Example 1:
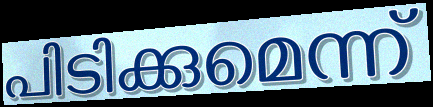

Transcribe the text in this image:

പിടിക്കുമെന്ന്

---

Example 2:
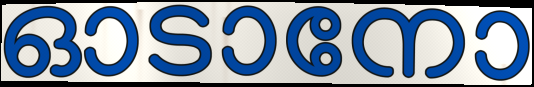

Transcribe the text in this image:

ഓടാനോ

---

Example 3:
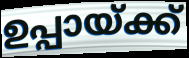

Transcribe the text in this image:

ഉപ്പായ്ക്ക്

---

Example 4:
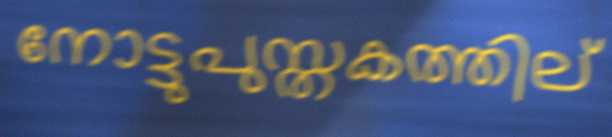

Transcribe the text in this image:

നോട്ടുപുസ്തകത്തില്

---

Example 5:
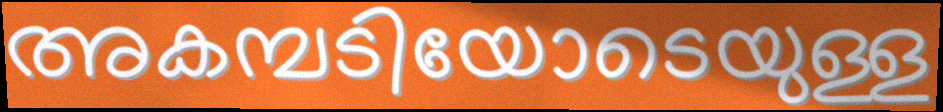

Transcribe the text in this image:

അകമ്പടിയോടെയുള്ള